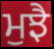
ਮੁਝੈ